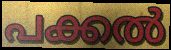
പക്കൽ